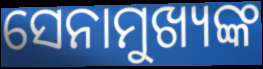
ସେନାମୁଖ୍ୟଙ୍କ